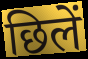
छिलें